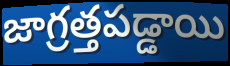
జాగ్రత్తపడ్డాయి